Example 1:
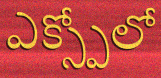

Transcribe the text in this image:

ఎక్స్పోలో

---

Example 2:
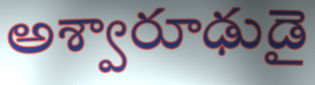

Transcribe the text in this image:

అశ్వారూఢుడై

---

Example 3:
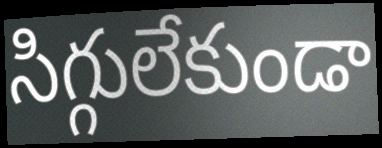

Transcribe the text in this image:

సిగ్గులేకుండా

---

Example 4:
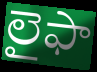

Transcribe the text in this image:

లైఫా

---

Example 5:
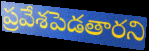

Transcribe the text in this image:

ప్రవేశపెడతారని